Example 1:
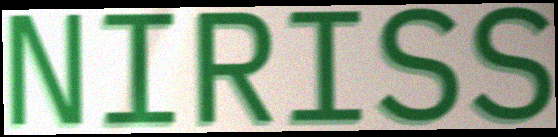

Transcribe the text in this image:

NIRISS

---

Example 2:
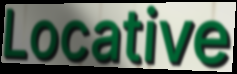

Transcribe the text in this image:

Locative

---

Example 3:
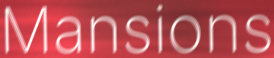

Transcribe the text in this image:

Mansions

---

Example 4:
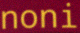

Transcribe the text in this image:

noni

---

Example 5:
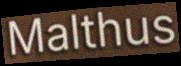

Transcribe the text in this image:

Malthus